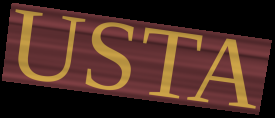
USTA